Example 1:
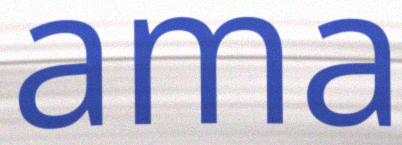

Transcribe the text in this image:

ama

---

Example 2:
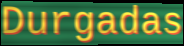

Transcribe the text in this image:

Durgadas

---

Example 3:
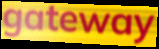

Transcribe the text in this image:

gateway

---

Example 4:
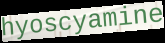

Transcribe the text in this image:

hyoscyamine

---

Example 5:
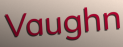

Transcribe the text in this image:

Vaughn